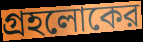
গ্রহলোকের